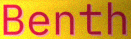
Benth